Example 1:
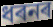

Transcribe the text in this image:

ধৰনৰ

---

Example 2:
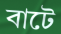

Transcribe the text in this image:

বাটে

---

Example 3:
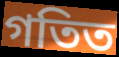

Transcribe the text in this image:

গতিত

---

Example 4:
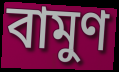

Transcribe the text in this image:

বামুণ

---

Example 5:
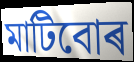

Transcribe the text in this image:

মাটিবোৰ